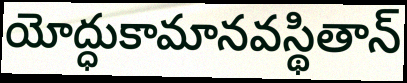
యోద్ధుకామానవస్థితాన్